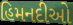
હિમનદીઓ